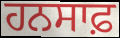
ਹਨਸਾਫ਼